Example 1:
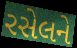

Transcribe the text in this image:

રસેલને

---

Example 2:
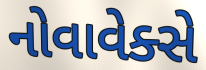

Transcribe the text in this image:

નોવાવેક્સે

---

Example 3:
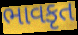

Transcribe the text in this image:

ભાવકૃત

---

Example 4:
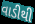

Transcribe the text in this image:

વાડીથી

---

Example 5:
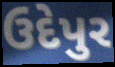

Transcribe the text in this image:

ઉદેપુર